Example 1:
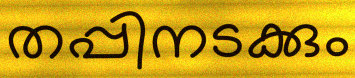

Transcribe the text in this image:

തപ്പിനടക്കും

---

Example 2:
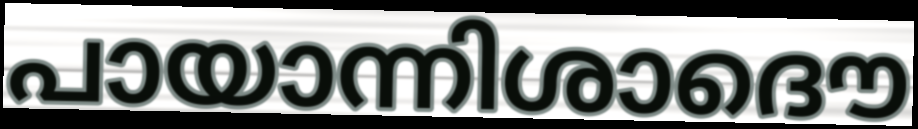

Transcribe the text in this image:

പായാന്നിശാദൌ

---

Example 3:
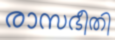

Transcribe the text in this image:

രാസഭീതി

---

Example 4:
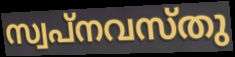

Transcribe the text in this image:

സ്വപ്നവസ്തു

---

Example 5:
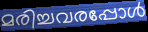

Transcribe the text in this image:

മരിച്ചവരപ്പോൾ